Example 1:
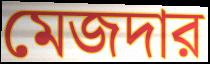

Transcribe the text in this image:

মেজদার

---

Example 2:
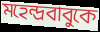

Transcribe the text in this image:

মহেন্দ্রবাবুকে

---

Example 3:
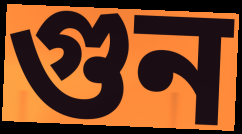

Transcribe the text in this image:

গুন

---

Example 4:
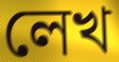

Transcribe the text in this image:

লেখ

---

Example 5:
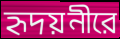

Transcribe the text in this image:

হৃদয়নীরে